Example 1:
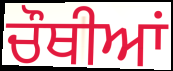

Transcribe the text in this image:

ਚੌਥੀਆਂ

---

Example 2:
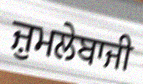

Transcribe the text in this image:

ਜ਼ੁਮਲੇਬਾਜੀ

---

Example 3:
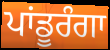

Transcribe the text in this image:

ਪਾਂਡੂਰੰਗਾ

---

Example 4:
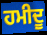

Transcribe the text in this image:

ਹਮੀਦੂ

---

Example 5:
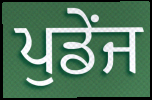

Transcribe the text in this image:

ਪੁਡੇਂਜ